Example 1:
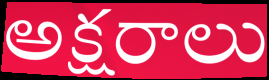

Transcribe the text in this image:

అక్షరాలు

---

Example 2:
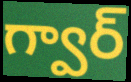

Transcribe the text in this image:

గ్వార్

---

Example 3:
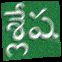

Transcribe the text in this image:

శ్లేష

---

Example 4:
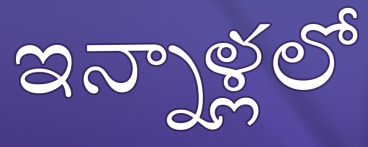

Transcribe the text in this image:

ఇన్నాళ్లలో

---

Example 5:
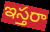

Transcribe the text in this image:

ఇస్తరా